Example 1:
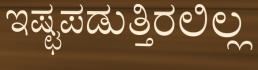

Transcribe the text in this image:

ಇಷ್ಟಪಡುತ್ತಿರಲಿಲ್ಲ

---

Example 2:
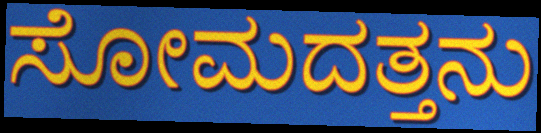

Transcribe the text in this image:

ಸೋಮದತ್ತನು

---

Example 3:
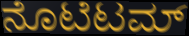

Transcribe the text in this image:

ನೊಟೆಟಮ್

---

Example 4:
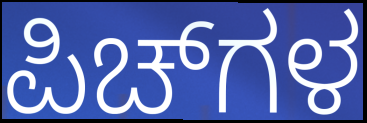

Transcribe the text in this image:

ಪಿಚ್‌ಗಳ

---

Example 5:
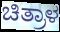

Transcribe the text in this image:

ಚಿತ್ರಾಳ